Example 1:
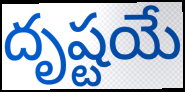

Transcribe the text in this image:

దృష్టయే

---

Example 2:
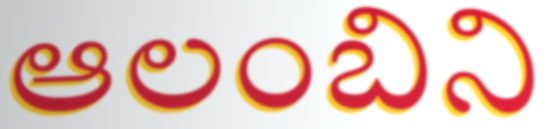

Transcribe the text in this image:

ఆలంబిని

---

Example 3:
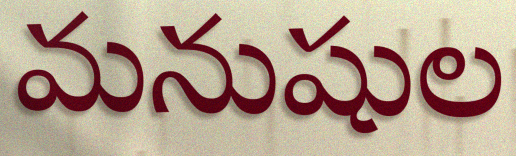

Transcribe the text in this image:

మనుషుల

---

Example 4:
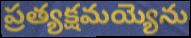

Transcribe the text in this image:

ప్రత్యక్షమయ్యెను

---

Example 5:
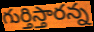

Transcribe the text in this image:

గుర్తిస్తారన్న